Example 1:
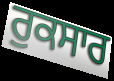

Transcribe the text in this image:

ਰੁਕਸਾਰ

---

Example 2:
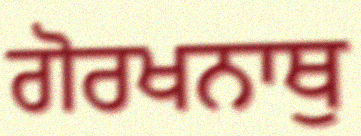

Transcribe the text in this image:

ਗੋਰਖਨਾਥੁ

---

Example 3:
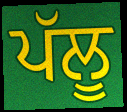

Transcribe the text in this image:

ਪੱਲੂ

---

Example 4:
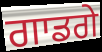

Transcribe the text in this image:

ਗਾਡਗੇ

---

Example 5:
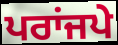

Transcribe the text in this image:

ਪਰਾਂਜਪੇ